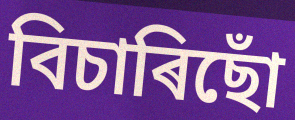
বিচাৰিছোঁ